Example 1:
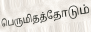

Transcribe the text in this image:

பெருமிதத்தோடும்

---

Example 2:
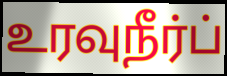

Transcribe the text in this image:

உரவுநீர்ப்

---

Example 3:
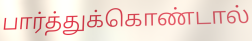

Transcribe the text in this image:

பார்த்துக்கொண்டால்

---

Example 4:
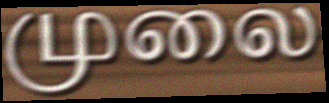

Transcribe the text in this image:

முலை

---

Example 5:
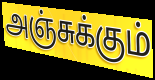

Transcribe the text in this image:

அஞ்சுக்கும்